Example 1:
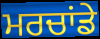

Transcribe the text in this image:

ਮਰਚਾਂਡੇ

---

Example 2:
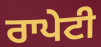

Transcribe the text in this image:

ਰਾਪੇਟੀ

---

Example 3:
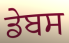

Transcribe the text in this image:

ਡੇਬਸ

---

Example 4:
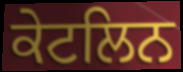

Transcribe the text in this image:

ਕੇਟਲਿਨ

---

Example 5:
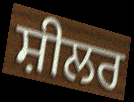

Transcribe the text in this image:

ਸ਼ੀਲਰ